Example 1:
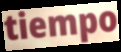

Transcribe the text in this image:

tiempo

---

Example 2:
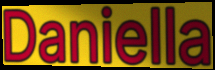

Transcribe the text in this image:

Daniella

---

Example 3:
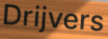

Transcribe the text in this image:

Drijvers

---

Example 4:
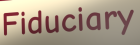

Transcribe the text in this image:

Fiduciary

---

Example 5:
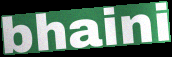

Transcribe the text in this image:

bhaini